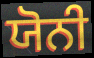
ਯੋਨੀ